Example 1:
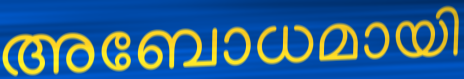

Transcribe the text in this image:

അബോധമായി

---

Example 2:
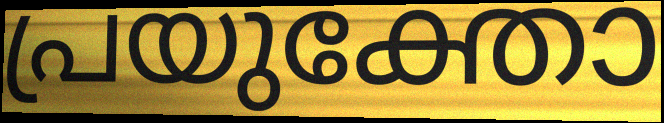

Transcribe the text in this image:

പ്രയുക്തോ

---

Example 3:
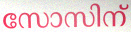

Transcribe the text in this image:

സോസിന്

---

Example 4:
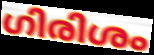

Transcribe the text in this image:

ഗിരിശം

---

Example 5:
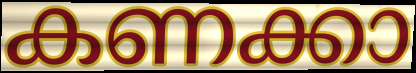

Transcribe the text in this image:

കണക്കാ